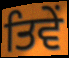
ਤਿਵੇਂ